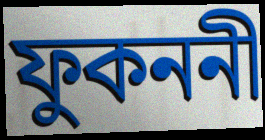
ফুকননী